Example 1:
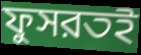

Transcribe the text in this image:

ফুসরতই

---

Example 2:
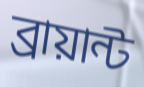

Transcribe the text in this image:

ব্রায়ান্ট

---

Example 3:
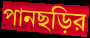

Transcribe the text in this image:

পানছড়ির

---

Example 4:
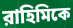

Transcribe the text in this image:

রাহিমিকে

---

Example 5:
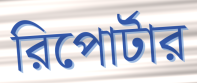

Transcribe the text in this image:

রিপোর্টার